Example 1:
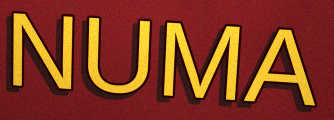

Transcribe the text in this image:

NUMA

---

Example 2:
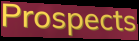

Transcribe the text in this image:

Prospects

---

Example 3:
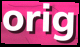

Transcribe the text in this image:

orig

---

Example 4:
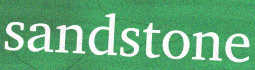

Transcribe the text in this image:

sandstone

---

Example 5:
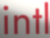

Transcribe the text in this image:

intl